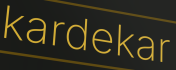
kardekar